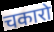
चकारो